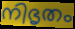
നിഭൃതം